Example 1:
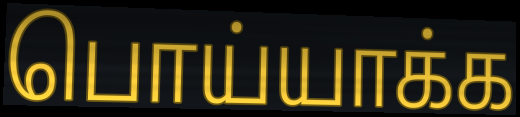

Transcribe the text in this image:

பொய்யாக்க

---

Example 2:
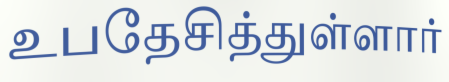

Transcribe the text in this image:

உபதேசித்துள்ளார்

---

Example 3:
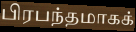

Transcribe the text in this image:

பிரபந்தமாகக்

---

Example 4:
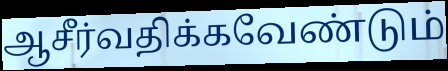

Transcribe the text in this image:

ஆசீர்வதிக்கவேண்டும்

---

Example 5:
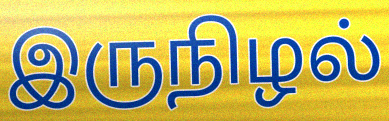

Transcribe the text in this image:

இருநிழல்